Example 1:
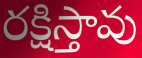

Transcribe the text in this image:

రక్షిస్తావు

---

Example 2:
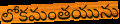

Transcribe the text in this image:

లోకమంతయును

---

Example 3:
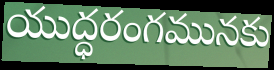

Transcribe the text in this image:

యుద్ధరంగమునకు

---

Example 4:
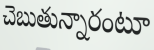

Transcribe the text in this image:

చెబుతున్నారంటూ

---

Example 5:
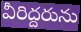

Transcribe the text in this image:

వీరిద్దరును